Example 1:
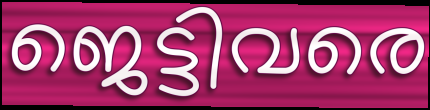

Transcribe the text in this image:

ജെട്ടിവരെ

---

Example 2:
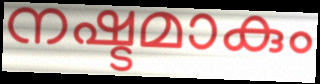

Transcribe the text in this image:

നഷ്ടമാകും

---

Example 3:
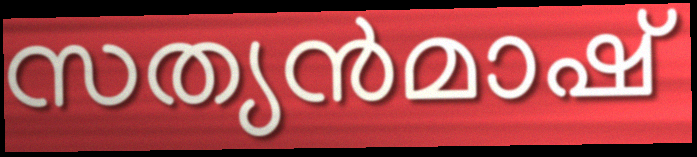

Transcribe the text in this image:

സത്യൻമാഷ്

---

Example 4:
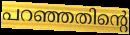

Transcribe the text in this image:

പറഞ്ഞതിന്റെ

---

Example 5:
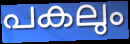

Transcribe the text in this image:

പകലും